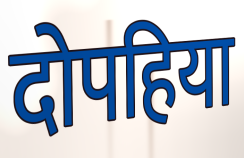
दोपहिया